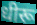
धीरू